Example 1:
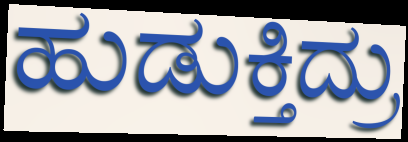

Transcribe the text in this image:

ಹುಡುಕ್ತಿದ್ರು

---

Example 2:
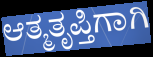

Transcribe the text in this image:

ಆತ್ಮತೃಪ್ತಿಗಾಗಿ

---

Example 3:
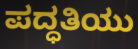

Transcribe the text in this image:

ಪದ್ಧತಿಯು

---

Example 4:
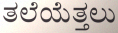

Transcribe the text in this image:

ತಲೆಯೆತ್ತಲು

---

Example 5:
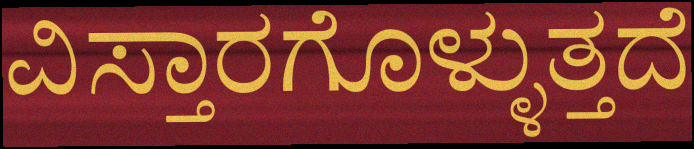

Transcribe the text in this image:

ವಿಸ್ತಾರಗೊಳ್ಳುತ್ತದೆ